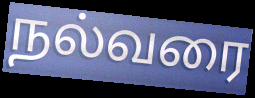
நல்வரை